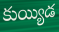
కుయ్యిడ